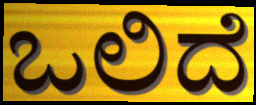
ಒಲಿದೆ